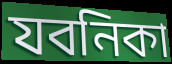
যবনিকা